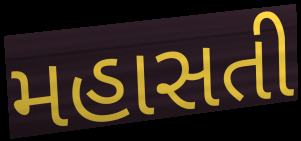
મહાસતી